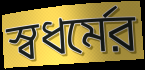
স্বধর্মের